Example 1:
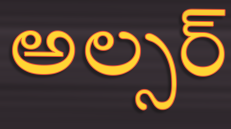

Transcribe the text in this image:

అల్సర్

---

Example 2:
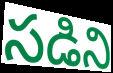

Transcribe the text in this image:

సడిని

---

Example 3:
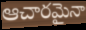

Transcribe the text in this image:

ఆచారమైనా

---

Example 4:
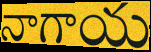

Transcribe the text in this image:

నాగాయ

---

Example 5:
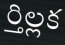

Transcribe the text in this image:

ర్తిల్లక